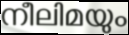
നീലിമയും